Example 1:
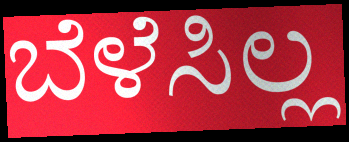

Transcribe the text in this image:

ಬೆಳೆಸಿಲ್ಲ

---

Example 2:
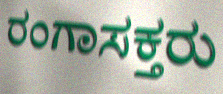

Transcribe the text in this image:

ರಂಗಾಸಕ್ತರು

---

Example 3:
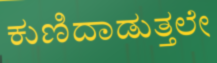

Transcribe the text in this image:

ಕುಣಿದಾಡುತ್ತಲೇ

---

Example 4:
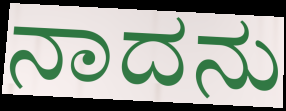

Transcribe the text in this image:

ನಾದನು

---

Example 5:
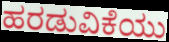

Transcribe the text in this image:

ಹರಡುವಿಕೆಯು